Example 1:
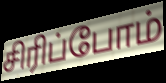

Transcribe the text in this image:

சிரிப்போம்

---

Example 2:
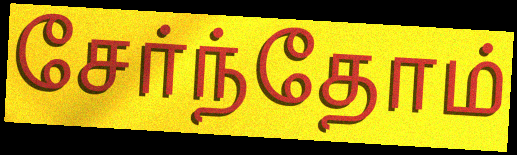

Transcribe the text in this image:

சேர்ந்தோம்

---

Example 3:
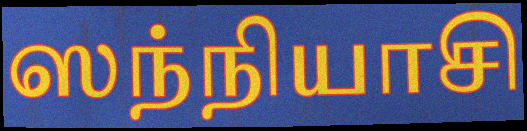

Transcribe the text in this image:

ஸந்நியாசி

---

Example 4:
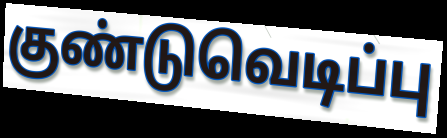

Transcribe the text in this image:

குண்டுவெடிப்பு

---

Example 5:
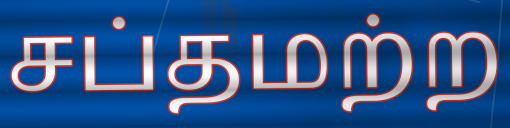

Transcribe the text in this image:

சப்தமற்ற